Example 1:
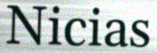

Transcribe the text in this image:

Nicias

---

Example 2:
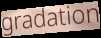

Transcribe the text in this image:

gradation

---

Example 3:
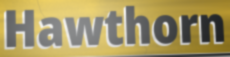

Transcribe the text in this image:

Hawthorn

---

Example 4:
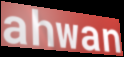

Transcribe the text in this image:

ahwan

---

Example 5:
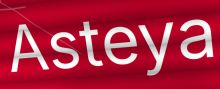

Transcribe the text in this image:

Asteya